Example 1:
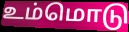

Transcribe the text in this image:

உம்மொடு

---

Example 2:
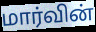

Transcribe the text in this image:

மார்வின்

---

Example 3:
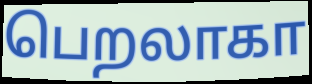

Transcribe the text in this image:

பெறலாகா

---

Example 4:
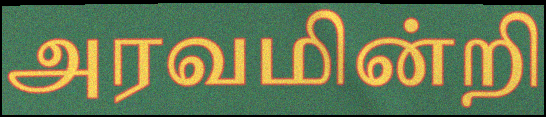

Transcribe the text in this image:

அரவமின்றி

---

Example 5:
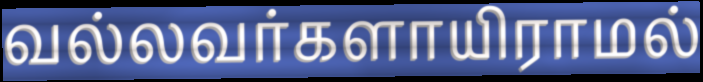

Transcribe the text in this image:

வல்லவர்களாயிராமல்